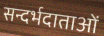
सन्दर्भदाताओं